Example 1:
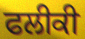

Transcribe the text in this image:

ਫਲੀਕੀ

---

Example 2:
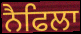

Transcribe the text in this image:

ਨੈਫਿਲਾ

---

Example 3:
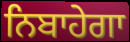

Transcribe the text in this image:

ਨਿਬਾਹੇਗਾ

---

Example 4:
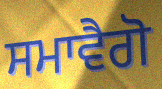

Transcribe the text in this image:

ਸਮਾਵੈਗੋ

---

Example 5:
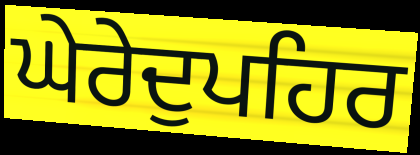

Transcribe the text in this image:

ਘੇਰੇਦੁਪਹਿਰ